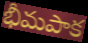
భీమపాక